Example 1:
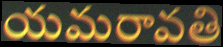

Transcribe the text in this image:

యమరావతి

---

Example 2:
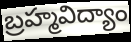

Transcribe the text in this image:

బ్రహ్మవిద్యాం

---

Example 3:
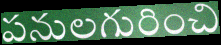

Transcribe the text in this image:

పనులగురించి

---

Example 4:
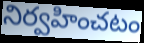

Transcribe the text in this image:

నిర్వహించటం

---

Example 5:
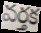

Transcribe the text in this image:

వర్తక